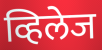
व्हिलेज